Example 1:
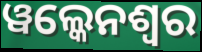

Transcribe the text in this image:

ୱଲ୍କେନଶ୍ୱର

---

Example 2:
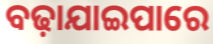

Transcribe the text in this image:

ବଢ଼ାଯାଇପାରେ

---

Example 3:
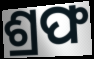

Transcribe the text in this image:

ଶ୍ରଫ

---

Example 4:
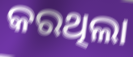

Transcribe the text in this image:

କରଥିଲା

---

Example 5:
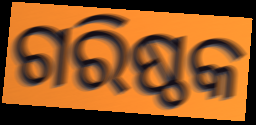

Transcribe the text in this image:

ଗରିଷ୍ଠକ